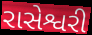
રાસેશ્વરી